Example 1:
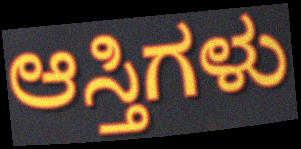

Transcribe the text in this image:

ಆಸ್ತಿಗಳು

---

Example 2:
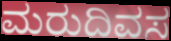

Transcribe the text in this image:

ಮರುದಿವಸ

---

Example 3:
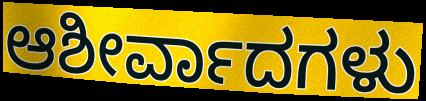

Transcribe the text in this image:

ಆಶೀರ್ವಾದಗಳು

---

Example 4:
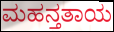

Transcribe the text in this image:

ಮಹನ್ತತಾಯ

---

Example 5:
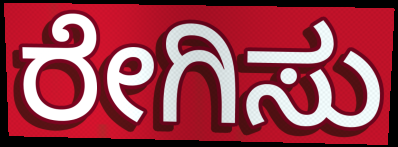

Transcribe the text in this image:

ರೇಗಿಸು